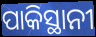
ପାକିସ୍ଥାନୀ